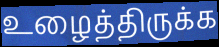
உழைத்திருக்க